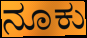
ನೂಕು